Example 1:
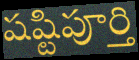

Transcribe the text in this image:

షష్టిపూర్తి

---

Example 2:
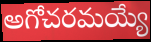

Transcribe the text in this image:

అగోచరమయ్యే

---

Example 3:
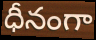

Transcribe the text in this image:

ధీనంగా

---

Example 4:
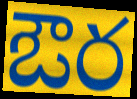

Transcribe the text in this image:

ఔర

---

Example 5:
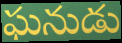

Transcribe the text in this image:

ఘనుడు